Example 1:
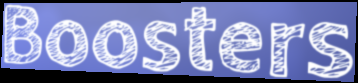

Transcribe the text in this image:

Boosters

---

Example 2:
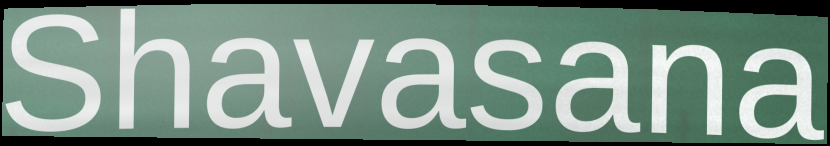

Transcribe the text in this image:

Shavasana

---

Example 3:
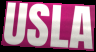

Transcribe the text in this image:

USLA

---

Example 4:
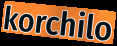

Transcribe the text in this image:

korchilo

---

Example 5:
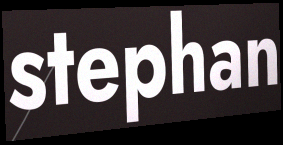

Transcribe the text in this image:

stephan